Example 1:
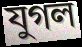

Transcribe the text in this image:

যুগল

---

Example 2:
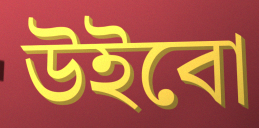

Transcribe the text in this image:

উইবো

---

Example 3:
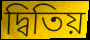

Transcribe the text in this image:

দ্বিতিয়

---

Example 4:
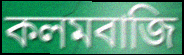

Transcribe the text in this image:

কলমবাজি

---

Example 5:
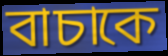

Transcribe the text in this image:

বাচাকে